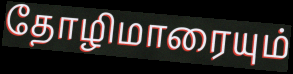
தோழிமாரையும்